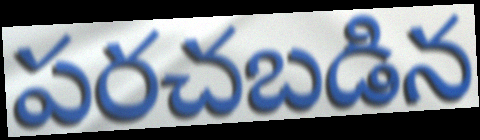
పరచబడిన